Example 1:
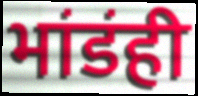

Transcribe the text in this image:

भांडंही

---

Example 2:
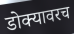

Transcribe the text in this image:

डोक्यावरच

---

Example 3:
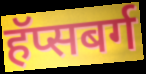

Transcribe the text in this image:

हॅप्सबर्ग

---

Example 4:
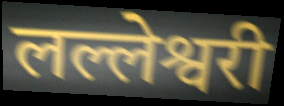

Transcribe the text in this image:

लल्लेश्वरी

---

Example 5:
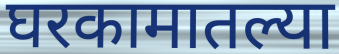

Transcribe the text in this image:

घरकामातल्या